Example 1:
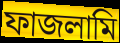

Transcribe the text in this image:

ফাজলামি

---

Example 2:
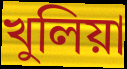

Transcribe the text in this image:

খুলিয়া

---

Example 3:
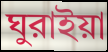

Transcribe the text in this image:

ঘুরাইয়া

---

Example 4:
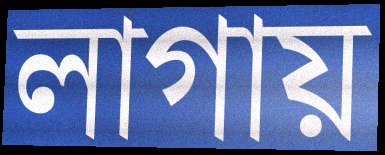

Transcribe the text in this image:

লাগায়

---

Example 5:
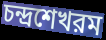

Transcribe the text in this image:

চন্দ্রশেখরম